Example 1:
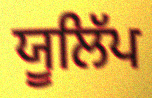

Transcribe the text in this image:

ਯੂਲਿੱਪ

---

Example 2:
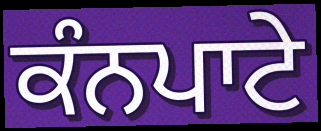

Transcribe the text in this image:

ਕੰਨਪਾਟੇ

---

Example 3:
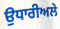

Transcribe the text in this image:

ਉਧਾਰੀਅਲੇ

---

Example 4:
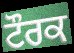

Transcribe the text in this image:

ਟੌਰਕ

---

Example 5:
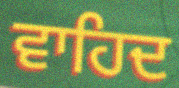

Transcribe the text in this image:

ਵਾਹਿਦ